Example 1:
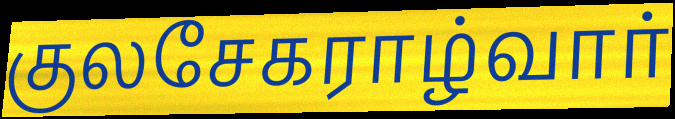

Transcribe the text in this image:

குலசேகராழ்வார்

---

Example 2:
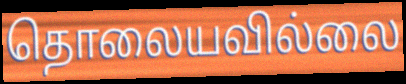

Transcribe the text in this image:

தொலையவில்லை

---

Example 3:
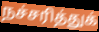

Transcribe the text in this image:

நச்சரித்துக்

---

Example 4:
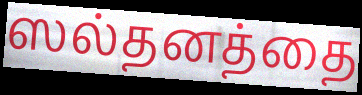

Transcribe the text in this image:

ஸல்தனத்தை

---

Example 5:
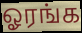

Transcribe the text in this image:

ஓரங்க